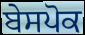
ਬੇਸਪੋਕ